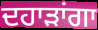
ਦਹਾੜਾਂਗਾ